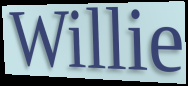
Willie